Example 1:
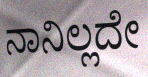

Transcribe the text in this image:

ನಾನಿಲ್ಲದೇ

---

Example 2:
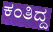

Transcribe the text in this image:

ಕಂತಿದ್ದ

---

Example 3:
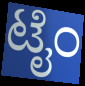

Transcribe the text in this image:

ಟೈಂ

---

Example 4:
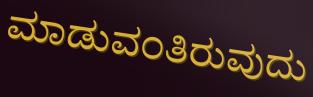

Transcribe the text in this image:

ಮಾಡುವಂತಿರುವುದು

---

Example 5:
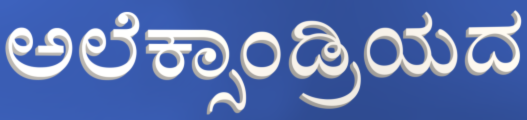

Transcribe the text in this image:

ಅಲೆಕ್ಸಾಂಡ್ರಿಯದ